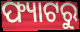
ଫ୍ୟାଟରୁ